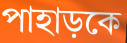
পাহাড়কে